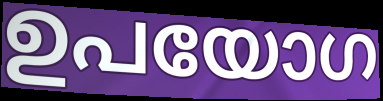
ഉപയോഗ